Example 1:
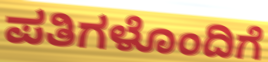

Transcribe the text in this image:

ಪತಿಗಳೊಂದಿಗೆ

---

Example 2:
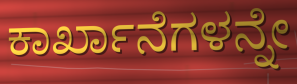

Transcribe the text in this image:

ಕಾರ್ಖಾನೆಗಳನ್ನೇ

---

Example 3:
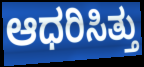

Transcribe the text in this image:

ಆಧರಿಸಿತ್ತು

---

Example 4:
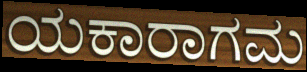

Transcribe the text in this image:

ಯಕಾರಾಗಮ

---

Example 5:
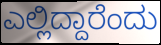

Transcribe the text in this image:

ಎಲ್ಲಿದ್ದಾರೆಂದು